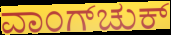
ವಾಂಗ್‌ಚುಕ್